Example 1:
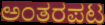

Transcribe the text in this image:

ಅಂತರಪಟ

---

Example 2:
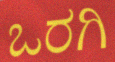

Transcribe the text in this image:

ಒರಗಿ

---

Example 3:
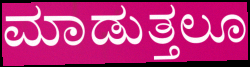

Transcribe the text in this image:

ಮಾಡುತ್ತಲೂ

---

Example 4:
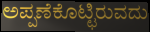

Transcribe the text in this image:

ಅಪ್ಪಣೆಕೊಟ್ಟಿರುವದು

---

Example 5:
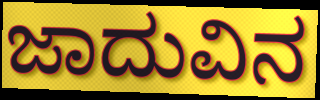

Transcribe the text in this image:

ಜಾದುವಿನ